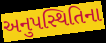
અનુપસ્થિતિના